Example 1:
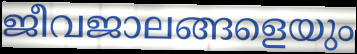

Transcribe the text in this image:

ജീവജാലങ്ങളെയും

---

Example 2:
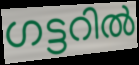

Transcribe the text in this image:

ഗട്ടറിൽ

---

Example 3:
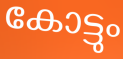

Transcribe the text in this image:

കോട്ടും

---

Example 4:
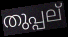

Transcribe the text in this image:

തുപ്പല്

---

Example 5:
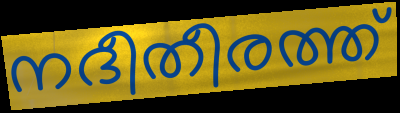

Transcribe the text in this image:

നദീതീരത്ത്